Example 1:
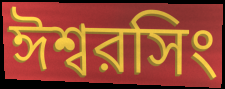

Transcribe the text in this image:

ঈশ্বরসিং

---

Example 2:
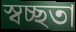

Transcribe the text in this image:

স্বচ্ছতা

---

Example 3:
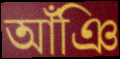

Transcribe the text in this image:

আঁঞি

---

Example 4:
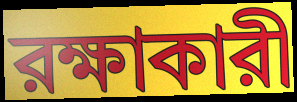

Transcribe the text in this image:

রক্ষাকারী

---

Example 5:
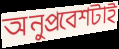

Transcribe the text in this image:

অনুপ্রবেশটাই